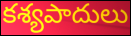
కశ్యపాదులు